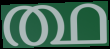
ത്ഥ